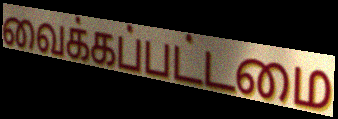
வைக்கப்பட்டமை